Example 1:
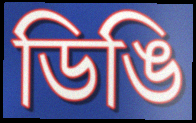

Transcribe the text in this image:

ডিঙি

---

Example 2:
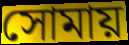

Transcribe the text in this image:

সোমায়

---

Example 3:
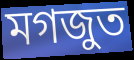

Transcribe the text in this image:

মগজুত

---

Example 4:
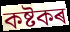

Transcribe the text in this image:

কষ্টকৰ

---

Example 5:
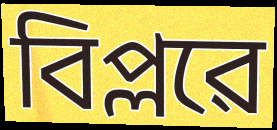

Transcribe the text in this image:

বিপ্লৱে